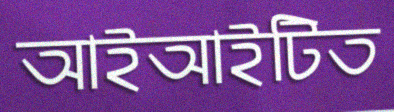
আইআইটিত